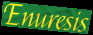
Enuresis